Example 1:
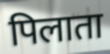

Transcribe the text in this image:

पिलाता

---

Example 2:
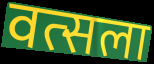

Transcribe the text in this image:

वत्‍सला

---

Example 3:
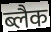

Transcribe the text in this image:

ब्लैक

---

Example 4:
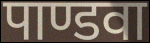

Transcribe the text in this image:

पाण्डवा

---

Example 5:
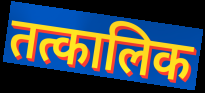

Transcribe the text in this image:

तत्कालिक